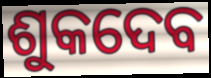
ଶୁକଦେବ